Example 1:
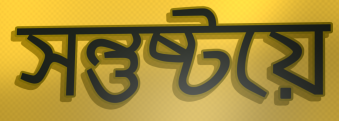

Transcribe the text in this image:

সন্তুষ্টয়ে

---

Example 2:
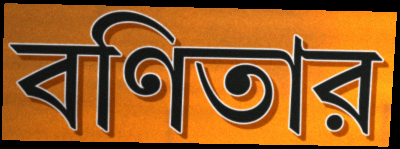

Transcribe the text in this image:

বণিতার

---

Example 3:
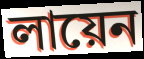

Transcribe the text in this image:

লায়েন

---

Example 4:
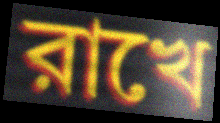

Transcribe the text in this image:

রাখে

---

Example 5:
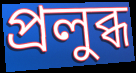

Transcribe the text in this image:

প্রলুব্ধ